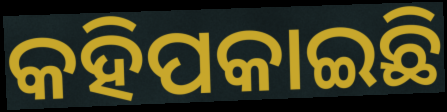
କହିପକାଇଛି